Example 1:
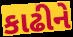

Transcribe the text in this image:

કાઢીને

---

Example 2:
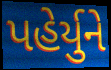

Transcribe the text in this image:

પહેર્યુને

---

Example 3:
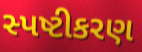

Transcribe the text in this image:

સ્પષ્ટીકરણ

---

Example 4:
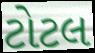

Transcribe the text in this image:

ટોટલ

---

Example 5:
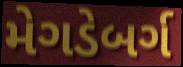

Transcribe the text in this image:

મેગડેબર્ગ